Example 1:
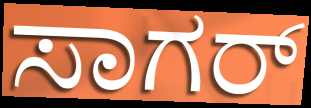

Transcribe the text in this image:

ಸಾಗರ್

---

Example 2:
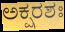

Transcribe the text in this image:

ಅಕ್ಷರಶಃ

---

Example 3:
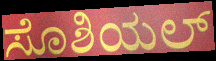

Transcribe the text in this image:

ಸೊಶಿಯಲ್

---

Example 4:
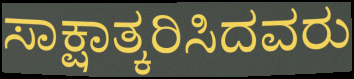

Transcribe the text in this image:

ಸಾಕ್ಷಾತ್ಕರಿಸಿದವರು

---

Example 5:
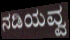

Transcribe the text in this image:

ನಡಿಯವ್ವ